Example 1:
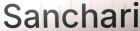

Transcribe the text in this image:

Sanchari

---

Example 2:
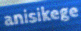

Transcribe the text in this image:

anisikege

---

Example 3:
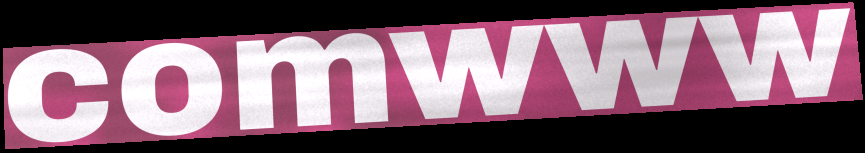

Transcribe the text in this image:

comwww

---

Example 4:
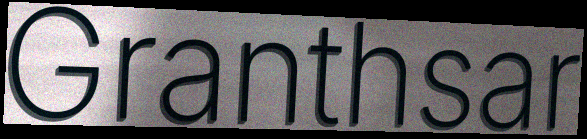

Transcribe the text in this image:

Granthsar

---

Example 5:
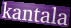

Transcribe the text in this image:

kantala